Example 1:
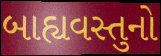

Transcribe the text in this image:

બાહ્યવસ્તુનો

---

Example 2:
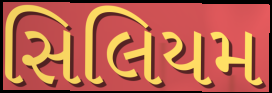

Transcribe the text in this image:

સિલિયમ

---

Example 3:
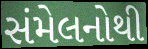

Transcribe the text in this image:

સંમેલનોથી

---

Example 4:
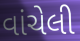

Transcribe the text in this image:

વાંચેલી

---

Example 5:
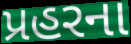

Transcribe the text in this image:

પ્રહરના